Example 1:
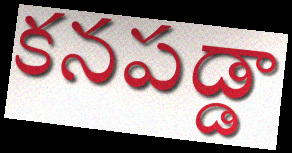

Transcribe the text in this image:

కనపడ్డా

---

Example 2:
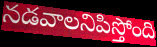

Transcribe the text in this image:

నడవాలనిపిస్తోంది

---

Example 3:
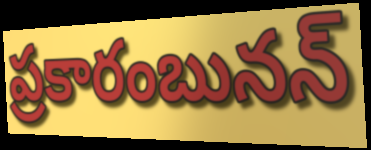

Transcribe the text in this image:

ప్రకారంబునన్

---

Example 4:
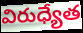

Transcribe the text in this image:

విరుధ్యేత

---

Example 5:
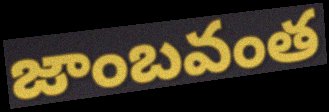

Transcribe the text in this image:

జాంబవంత